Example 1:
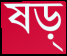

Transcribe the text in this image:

ষড়্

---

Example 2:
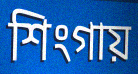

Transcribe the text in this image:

শিংগায়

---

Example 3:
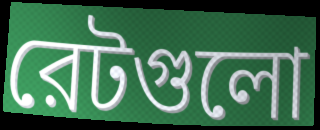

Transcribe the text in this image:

রেটগুলো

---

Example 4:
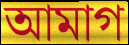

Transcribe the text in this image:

আমাগ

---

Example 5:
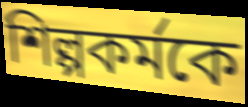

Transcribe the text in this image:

শিল্পকর্মকে